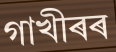
গাখীৰৰ